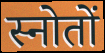
स्नोतों